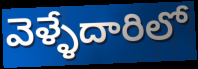
వెళ్ళేదారిలో